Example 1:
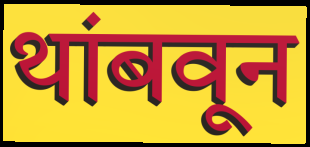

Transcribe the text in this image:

थांबवून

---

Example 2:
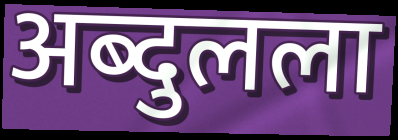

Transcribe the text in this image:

अब्दुलला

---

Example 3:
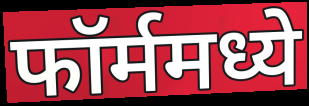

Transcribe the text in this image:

फॉर्ममध्ये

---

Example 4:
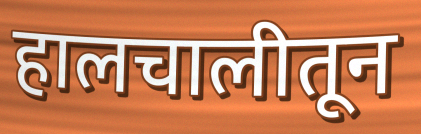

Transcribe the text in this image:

हालचालीतून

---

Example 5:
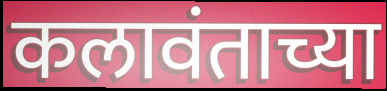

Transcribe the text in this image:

कलावंताच्या